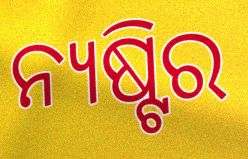
ନ୍ୟଷ୍ଟିର